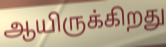
ஆயிருக்கிறது